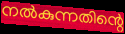
നൽകുന്നതിന്റെ